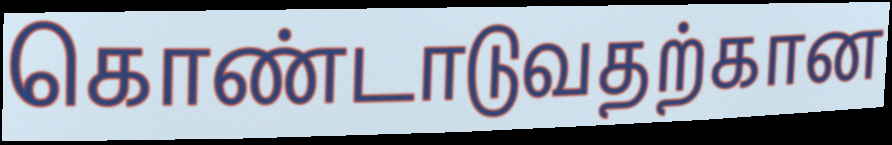
கொண்டாடுவதற்கான